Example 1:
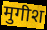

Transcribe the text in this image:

मुगीश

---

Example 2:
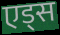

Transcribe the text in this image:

एड्स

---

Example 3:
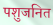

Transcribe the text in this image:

पशुजनित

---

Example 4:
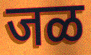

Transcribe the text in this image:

जळ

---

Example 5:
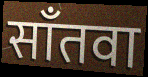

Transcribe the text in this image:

साँतवा